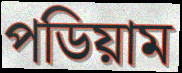
পডিয়াম